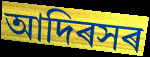
আদিৰসৰ